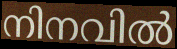
നിനവിൽ